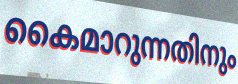
കൈമാറുന്നതിനും